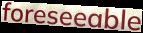
foreseeable